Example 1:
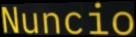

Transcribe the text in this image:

Nuncio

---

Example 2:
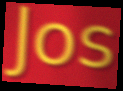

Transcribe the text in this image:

Jos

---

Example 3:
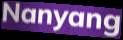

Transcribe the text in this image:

Nanyang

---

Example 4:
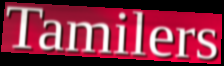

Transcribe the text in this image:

Tamilers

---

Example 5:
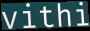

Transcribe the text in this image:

vithi